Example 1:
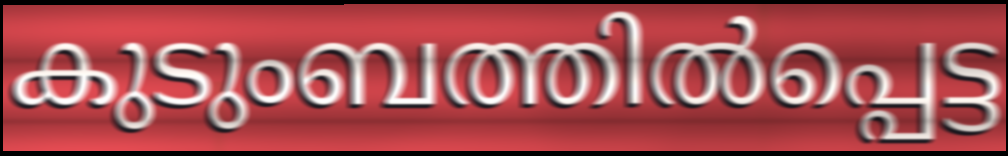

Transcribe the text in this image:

കുടുംബത്തിൽപ്പെട്ട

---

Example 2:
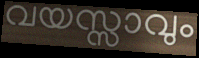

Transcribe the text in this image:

വയസ്സാവും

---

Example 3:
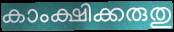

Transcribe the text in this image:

കാംക്ഷിക്കരുതു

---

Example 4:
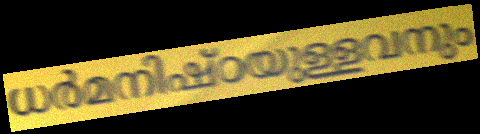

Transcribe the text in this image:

ധർമനിഷ്ഠയുള്ളവനും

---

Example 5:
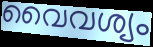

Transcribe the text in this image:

വൈവശ്യം